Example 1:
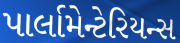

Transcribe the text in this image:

પાર્લામેન્ટેરિયન્સ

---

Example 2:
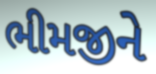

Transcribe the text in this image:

ભીમજીને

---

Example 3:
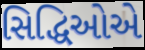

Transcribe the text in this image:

સિદ્ધિઓએ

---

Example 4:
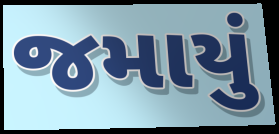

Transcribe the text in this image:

જમાયું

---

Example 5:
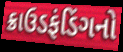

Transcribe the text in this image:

ક્રાઉડફંડિંગનો